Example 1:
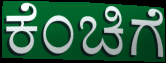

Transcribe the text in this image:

ಕೆಂಚಿಗೆ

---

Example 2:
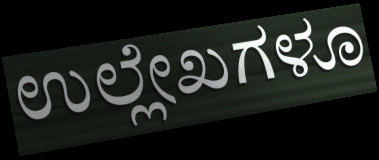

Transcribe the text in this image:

ಉಲ್ಲೇಖಗಳೂ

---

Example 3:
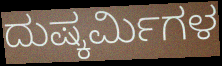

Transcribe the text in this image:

ದುಷ್ಕರ್ಮಿಗಳ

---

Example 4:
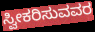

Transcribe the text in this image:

ಸ್ವೀಕರಿಸುವವರ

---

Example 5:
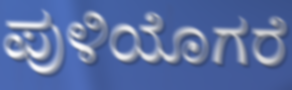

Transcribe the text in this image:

ಪುಳಿಯೊಗರೆ